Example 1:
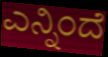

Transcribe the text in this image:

ಎನ್ನಿಂದೆ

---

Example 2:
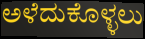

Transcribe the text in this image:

ಅಳೆದುಕೊಳ್ಳಲು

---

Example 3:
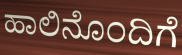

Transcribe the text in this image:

ಹಾಲಿನೊಂದಿಗೆ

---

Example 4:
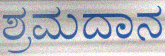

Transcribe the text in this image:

ಶ್ರಮದಾನ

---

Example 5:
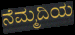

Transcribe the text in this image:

ನೆಮ್ಮದಿಯ